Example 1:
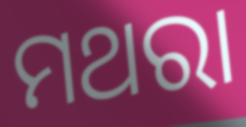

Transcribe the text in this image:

ମଥରା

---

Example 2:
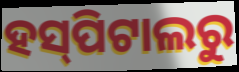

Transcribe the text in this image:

ହସ୍‌ପିଟାଲରୁ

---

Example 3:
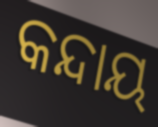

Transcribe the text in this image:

କନ୍ଦାୟ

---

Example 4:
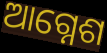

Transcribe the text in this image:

ଆଗ୍ନେଶ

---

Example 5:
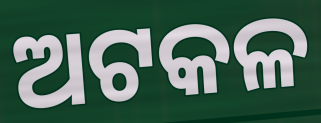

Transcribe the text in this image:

ଅଟକଳ